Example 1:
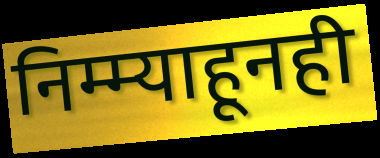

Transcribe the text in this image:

निम्म्याहूनही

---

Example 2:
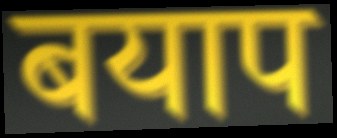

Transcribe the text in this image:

बयाप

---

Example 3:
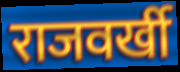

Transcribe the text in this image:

राजवर्खी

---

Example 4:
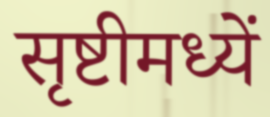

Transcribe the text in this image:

सृष्टीमध्यें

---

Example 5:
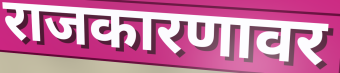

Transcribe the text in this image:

राजकारणावर